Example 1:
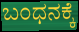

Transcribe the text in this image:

ಬಂಧನಕ್ಕೆ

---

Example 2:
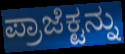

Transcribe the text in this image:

ಪ್ರಾಜೆಕ್ಟನ್ನು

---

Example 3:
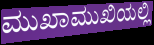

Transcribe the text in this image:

ಮುಖಾಮುಖಿಯಲ್ಲಿ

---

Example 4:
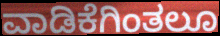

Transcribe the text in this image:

ವಾಡಿಕೆಗಿಂತಲೂ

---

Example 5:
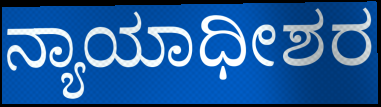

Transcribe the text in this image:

ನ್ಯಾಯಾಧೀಶರ